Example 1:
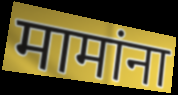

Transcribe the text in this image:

मामांना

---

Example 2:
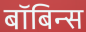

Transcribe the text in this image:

बॉबिन्स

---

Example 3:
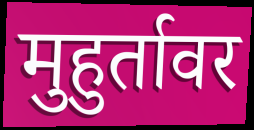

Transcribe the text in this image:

मुहुर्तावर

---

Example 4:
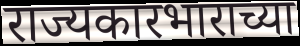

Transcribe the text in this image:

राज्यकारभाराच्या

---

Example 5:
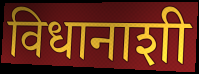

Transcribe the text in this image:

विधानाशी